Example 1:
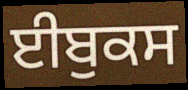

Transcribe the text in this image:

ਈਬੁਕਸ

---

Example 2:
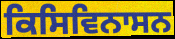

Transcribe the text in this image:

ਕਿਸਿਵਿਨਾਸਨ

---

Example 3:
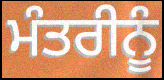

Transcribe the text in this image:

ਮੰਤਰੀਨੂੰ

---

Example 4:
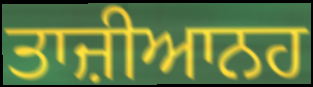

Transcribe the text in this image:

ਤਾਜ਼ੀਆਨਹ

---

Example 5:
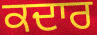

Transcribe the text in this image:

ਕਦਾਰ